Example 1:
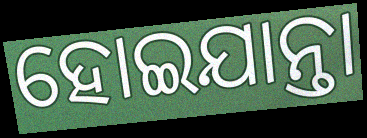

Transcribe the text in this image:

ହୋଇଯାନ୍ତା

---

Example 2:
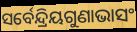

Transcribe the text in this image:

ସର୍ବେନ୍ଦ୍ରିୟଗୁଣାଭାସଂ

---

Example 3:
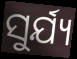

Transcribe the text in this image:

ସୁର୍ଯ୍ୟ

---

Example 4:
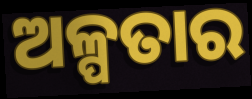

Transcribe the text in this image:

ଅଳ୍ପତାର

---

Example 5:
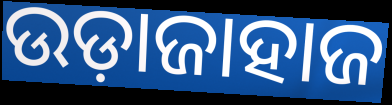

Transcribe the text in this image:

ଉଡ଼ାଜାହାଜ